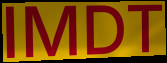
IMDT